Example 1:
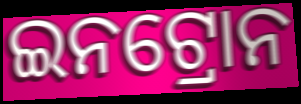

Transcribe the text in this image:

ଇନଟ୍ରୋନ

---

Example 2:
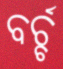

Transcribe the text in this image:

ବର୍ଚ୍ଚ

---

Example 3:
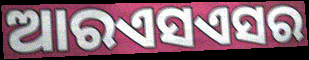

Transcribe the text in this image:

ଆରଏସଏସର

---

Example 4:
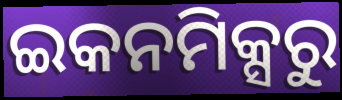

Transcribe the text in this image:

ଇକନମିକ୍ସରୁ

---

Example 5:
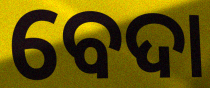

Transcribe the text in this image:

ବେଦା